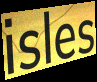
isles